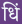
धिं